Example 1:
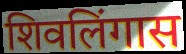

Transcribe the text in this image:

शिवलिंगास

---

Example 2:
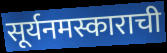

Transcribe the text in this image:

सूर्यनमस्काराची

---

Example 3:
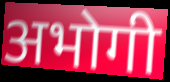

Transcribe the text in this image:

अभोगी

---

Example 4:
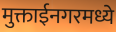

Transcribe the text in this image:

मुक्ताईनगरमध्ये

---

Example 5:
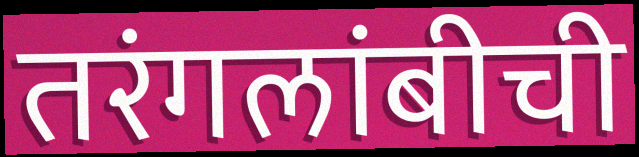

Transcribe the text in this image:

तरंगलांबीची